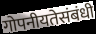
गोपनीयतेसंबंधी